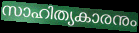
സാഹിത്യകാരനും